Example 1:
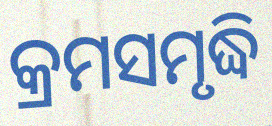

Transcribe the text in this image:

କ୍ରମସମୃଦ୍ଧି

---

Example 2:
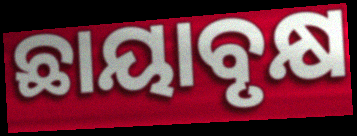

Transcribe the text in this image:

ଛାୟାବୃକ୍ଷ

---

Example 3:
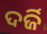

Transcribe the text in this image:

ଦର୍ଜି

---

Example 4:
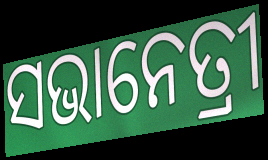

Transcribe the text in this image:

ସଭାନେତ୍ରୀ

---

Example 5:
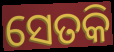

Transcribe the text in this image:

ସେତକି